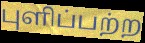
புளிப்பற்ற